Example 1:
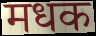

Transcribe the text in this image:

मधक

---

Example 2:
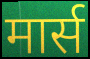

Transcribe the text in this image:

मार्स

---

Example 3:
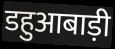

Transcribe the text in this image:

डहुआबाड़ी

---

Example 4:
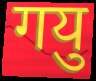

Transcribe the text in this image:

गयु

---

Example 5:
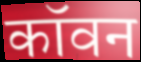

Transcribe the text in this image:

कॉवन